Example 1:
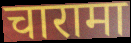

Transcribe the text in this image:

चारामा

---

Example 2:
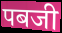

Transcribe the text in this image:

पबजी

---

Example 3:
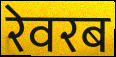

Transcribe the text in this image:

रेवरब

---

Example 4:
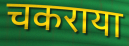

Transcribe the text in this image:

चकराया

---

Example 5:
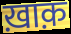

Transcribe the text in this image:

ख़ाक़